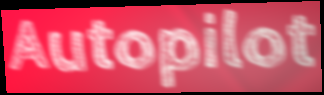
Autopilot